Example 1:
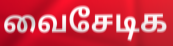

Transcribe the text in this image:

வைசேடிக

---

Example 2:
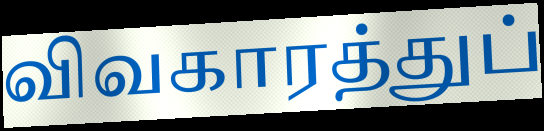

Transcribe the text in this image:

விவகாரத்துப்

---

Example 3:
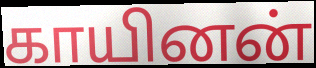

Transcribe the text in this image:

காயினன்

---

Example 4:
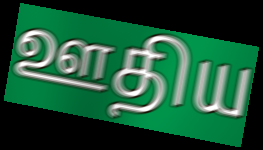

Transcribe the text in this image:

ஊதிய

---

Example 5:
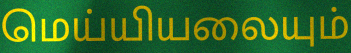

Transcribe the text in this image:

மெய்யியலையும்